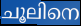
ചൂലിനെ